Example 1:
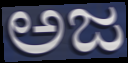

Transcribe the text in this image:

ಅಜ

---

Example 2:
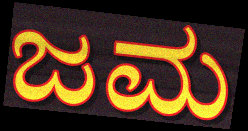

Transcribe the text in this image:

ಜಮ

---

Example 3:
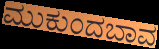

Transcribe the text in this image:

ಮುಕುಂದಬಾವ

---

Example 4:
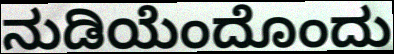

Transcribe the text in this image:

ನುಡಿಯೆಂದೊಂದು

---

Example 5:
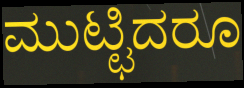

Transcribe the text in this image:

ಮುಟ್ಟಿದರೂ